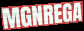
MGNREGA